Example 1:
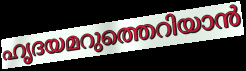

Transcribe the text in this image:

ഹൃദയമറുത്തെറിയാൻ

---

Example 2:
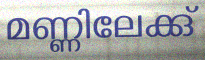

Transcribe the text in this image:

മണ്ണിലേക്കു്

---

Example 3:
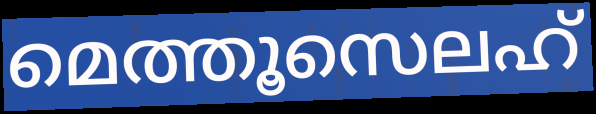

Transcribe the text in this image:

മെത്തൂസെലഹ്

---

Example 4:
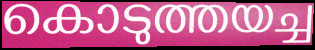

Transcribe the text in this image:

കൊടുത്തയച്ച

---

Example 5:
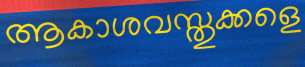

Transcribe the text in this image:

ആകാശവസ്തുക്കളെ